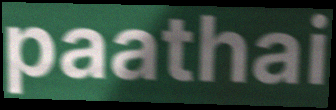
paathai